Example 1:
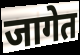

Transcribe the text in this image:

जागेत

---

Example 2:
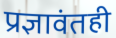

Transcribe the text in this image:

प्रज्ञावंतही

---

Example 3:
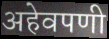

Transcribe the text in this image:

अहेवपणी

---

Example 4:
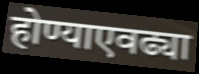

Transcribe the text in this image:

होण्याएवढ्या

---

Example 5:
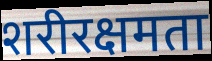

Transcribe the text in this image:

शरीरक्षमता